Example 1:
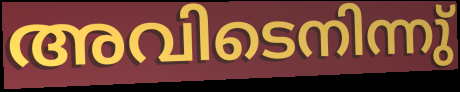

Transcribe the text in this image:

അവിടെനിന്നു്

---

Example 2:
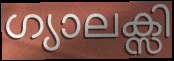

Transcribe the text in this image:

ഗ്യാലക്സി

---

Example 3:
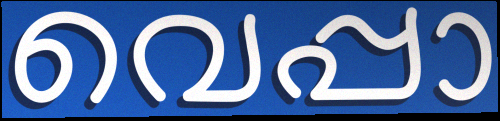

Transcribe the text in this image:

വെപ്പാ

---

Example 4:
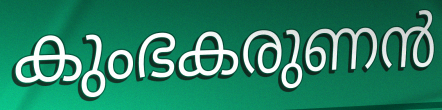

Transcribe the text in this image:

കുംഭകരുണൻ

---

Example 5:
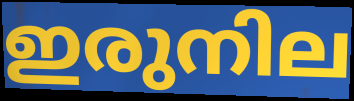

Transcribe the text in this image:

ഇരുനില